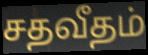
சதவீதம்